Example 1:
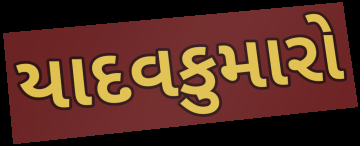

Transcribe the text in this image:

યાદવકુમારો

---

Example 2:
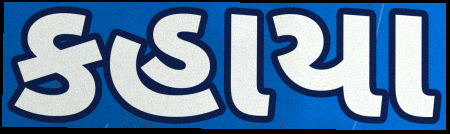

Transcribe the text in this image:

કહાયા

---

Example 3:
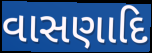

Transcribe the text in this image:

વાસણાદિ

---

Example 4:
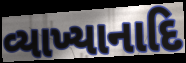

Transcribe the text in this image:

વ્યાખ્યાનાદિ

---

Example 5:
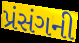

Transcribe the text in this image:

પ્રંસંગની